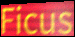
Ficus